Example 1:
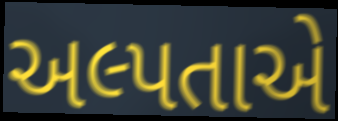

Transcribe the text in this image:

અલ્પતાએ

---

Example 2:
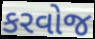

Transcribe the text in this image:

કરવોજ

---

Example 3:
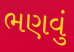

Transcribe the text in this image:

ભણવું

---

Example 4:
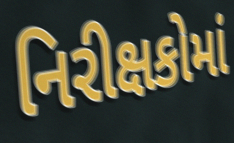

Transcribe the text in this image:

નિરીક્ષકોમાં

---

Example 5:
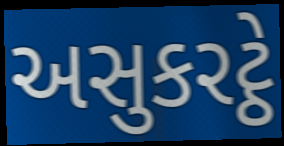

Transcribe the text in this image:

અસુકરટ્ઠે